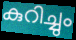
കുറിച്ചും